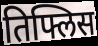
तिफ्लिस